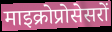
माइक्रोप्रोसेसरों